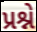
પ્રશ્ને